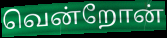
வென்றோன்